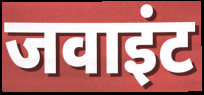
जवाइंट